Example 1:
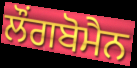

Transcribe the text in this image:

ਲੌਂਗਬੋਮੈਨ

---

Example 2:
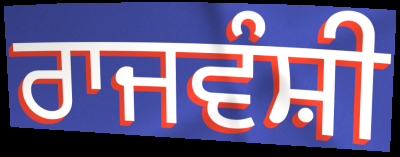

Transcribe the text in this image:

ਰਾਜਵੰਸ਼ੀ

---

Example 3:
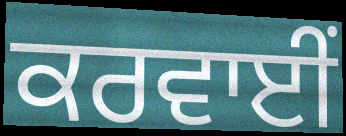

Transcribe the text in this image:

ਕਰਵਾਈਂ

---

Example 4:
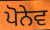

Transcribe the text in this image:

ਪੋਨੇਵ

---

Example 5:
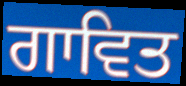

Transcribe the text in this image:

ਗਾਵਿਤ